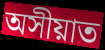
অসীয়াত